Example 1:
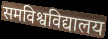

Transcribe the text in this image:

समविश्वविद्यालय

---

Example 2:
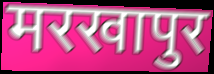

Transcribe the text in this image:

मरखापुर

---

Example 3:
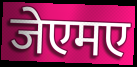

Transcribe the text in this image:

जेएमए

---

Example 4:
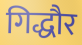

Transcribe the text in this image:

गिद्धौर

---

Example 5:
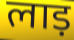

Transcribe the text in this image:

लाड़